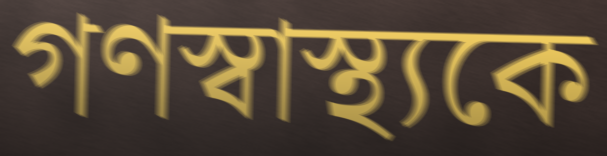
গণস্বাস্থ্যকে